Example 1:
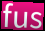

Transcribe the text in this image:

fus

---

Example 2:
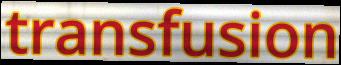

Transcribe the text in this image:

transfusion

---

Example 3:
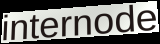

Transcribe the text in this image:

internode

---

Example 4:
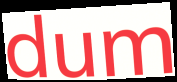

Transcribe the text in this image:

dum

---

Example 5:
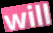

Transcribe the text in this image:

will